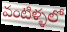
వంటిళ్ళలో